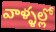
వాళ్ళల్లో